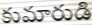
కుమారుడి